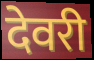
देवरी